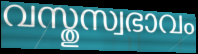
വസ്തുസ്വഭാവം